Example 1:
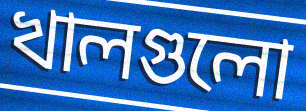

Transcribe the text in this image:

খালগুলো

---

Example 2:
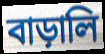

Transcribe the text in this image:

বাড়ালি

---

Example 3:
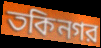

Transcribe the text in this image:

তকিনগর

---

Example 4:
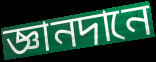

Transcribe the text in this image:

জ্ঞানদানে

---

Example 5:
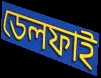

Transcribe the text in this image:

ডেলফাই